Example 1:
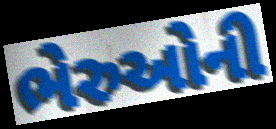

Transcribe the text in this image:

ભેરુઓની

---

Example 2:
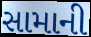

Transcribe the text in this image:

સામાની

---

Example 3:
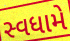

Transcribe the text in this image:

સ્વધામે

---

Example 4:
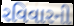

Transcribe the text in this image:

રવિવારની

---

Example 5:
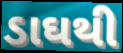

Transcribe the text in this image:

ડાઘથી